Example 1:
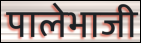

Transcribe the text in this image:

पालेभाजी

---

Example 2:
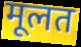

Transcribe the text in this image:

मूलत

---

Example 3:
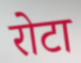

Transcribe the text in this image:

रोटा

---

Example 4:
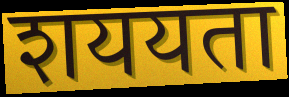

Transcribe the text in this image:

शययता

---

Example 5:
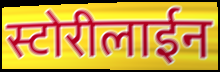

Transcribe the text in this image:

स्टोरीलाईन